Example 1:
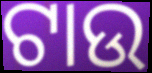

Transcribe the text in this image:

ଟାଉ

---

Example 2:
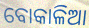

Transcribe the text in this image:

ବୋକାଳିଆ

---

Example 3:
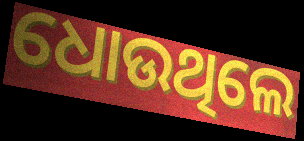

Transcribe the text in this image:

ଧୋଉଥିଲେ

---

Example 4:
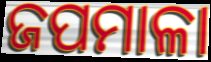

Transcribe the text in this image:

ଜପମାଳା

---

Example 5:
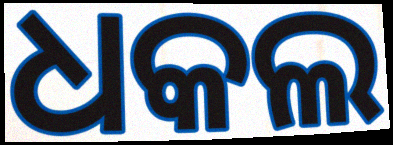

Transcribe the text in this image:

ଧକଲ